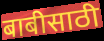
बाबीसाठी